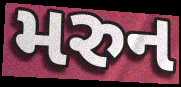
મરુન